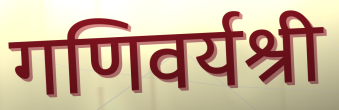
गणिवर्यश्री